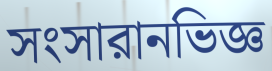
সংসারানভিজ্ঞ